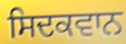
ਸਿਦਕਵਾਨ